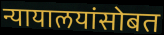
न्यायालयांसोबत